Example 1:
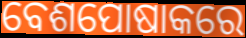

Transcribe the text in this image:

ବେଶପୋଷାକରେ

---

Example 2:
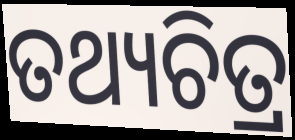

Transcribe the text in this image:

ତଥ୍ୟଚିତ୍ର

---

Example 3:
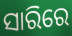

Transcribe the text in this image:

ସାରିରେ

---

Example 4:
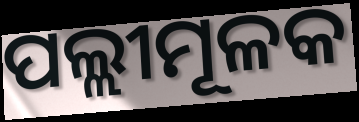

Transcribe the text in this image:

ପଲ୍ଲୀମୂଳକ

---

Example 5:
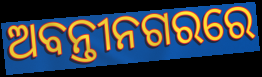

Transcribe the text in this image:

ଅବନ୍ତୀନଗରରେ